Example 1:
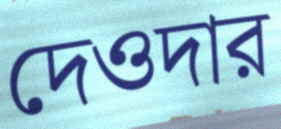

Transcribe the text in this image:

দেওদার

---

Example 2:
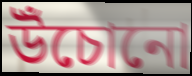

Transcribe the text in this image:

উঁচোনো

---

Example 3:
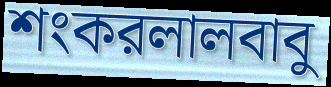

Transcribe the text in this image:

শংকরলালবাবু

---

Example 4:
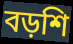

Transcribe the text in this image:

বড়শি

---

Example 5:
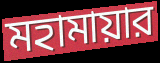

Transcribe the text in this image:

মহামায়ার